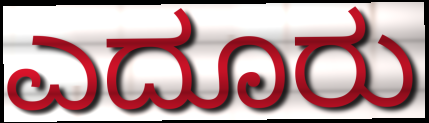
ಎದೂರು